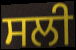
ਸਲੀ